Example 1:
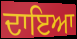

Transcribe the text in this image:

ਦਾਇਆ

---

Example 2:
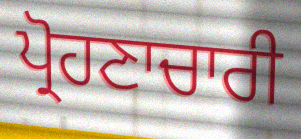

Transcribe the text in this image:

ਪ੍ਰੋਹਣਾਚਾਰੀ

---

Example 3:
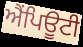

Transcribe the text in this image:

ਐਂਪਿਊਟੀ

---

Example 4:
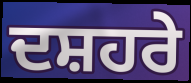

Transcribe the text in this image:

ਦਸ਼ਹਰੇ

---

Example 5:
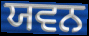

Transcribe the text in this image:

ਯਵਨ